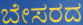
ಬೇಸರದ